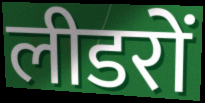
लीडरों